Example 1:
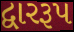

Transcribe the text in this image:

દ્વારરૂપ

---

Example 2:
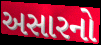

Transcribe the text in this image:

અસારનો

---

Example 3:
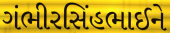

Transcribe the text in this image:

ગંભીરસિંહભાઈને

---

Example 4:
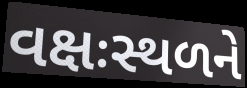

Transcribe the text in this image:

વક્ષઃસ્થળને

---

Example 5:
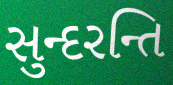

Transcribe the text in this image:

સુન્દરન્તિ